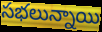
సభలున్నాయి